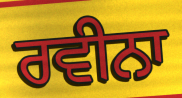
ਰਵੀਨਾ